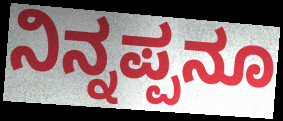
ನಿನ್ನಪ್ಪನೂ